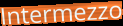
Intermezzo